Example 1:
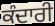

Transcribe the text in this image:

ਕੰਦਾਰੀ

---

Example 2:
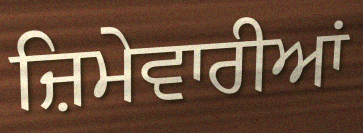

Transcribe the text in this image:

ਜ਼ਿਮੇਵਾਰੀਆਂ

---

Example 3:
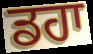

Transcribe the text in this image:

ਡਹਾ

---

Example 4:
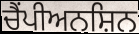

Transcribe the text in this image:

ਚੈਂਪੀਅਨਸ਼ਿਨ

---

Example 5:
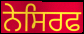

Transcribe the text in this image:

ਨੇਸਿਰਫ